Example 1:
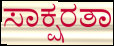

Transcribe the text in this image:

ಸಾಕ್ಷರತಾ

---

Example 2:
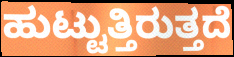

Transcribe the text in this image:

ಹುಟ್ಟುತ್ತಿರುತ್ತದೆ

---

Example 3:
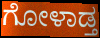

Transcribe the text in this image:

ಗೋಳಾಡ್ತ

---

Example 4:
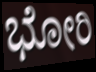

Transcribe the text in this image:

ಭೋರಿ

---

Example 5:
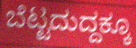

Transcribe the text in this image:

ಬೆಟ್ಟದುದ್ದಕ್ಕೂ